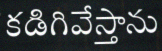
కడిగివేస్తాను